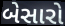
બેસારો